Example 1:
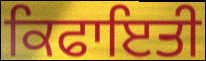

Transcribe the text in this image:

ਕਿਫਾਇਤੀ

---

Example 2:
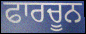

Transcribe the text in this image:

ਫਾਰਚੂਨ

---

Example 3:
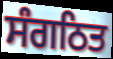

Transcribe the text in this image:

ਸੰਗਠਿਤ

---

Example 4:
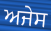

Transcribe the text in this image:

ਅਜੇਸ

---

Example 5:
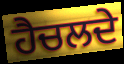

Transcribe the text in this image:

ਹੈਚਲਦੇ